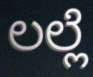
ಲಲ್ಲೆ